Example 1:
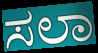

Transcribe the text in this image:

ಸಲಾ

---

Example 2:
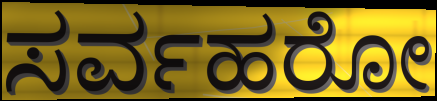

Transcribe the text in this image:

ಸರ್ವಹರೋ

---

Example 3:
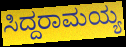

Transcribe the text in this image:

ಸಿದ್ದರಾಮಯ್ಯ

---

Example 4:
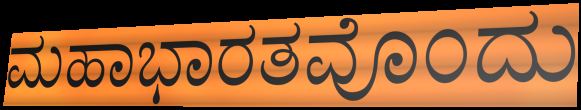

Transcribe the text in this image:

ಮಹಾಭಾರತವೊಂದು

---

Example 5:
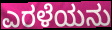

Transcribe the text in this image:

ಎರಳೆಯನು